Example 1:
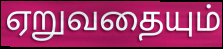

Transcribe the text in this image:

ஏறுவதையும்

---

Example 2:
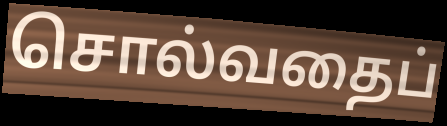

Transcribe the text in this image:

சொல்வதைப்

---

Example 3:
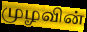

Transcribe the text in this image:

முழவின்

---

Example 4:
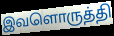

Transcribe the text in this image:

இவளொருத்தி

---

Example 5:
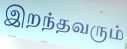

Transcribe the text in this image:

இறந்தவரும்